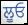
ਲੂਓ